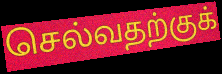
செல்வதற்குக்